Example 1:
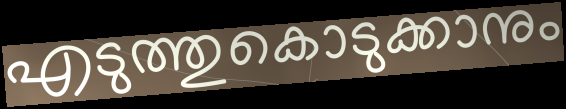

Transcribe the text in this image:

എടുത്തുകൊടുക്കാനും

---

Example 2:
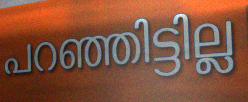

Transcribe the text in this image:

പറഞ്ഞിട്ടില്ല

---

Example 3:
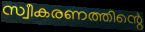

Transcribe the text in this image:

സ്വീകരണത്തിന്റെ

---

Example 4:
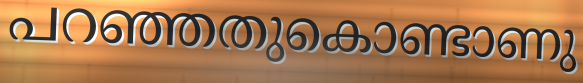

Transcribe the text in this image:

പറഞ്ഞതുകൊണ്ടാണു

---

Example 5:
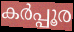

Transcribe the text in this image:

കർപ്പൂര